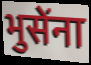
भुसेंना